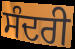
ਸੰਦਰੀ